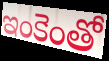
ఇంకెంతో